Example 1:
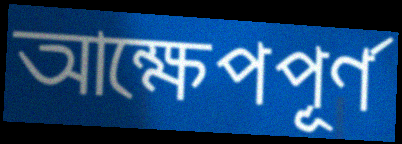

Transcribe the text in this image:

আক্ষেপপূর্ণ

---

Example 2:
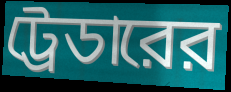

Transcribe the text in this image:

ট্রেডারের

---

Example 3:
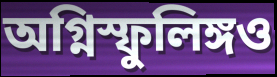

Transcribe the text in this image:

অগ্নিস্ফুলিঙ্গও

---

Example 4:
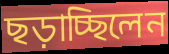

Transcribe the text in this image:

ছড়াচ্ছিলেন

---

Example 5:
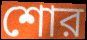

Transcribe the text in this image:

শোর